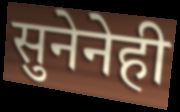
सुनेनेही